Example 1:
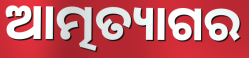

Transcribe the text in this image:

ଆତ୍ମତ୍ୟାଗର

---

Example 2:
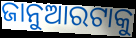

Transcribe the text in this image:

ଜାନୁଆରଟାକୁ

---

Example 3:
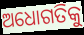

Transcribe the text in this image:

ଅଧୋଗତିକୁ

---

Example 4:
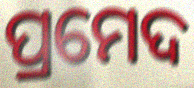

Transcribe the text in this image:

ପ୍ରମେଦ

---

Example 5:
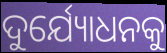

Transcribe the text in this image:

ଦୁର୍ଯ୍ୟୋଧନକୁ